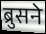
ब्रुसने